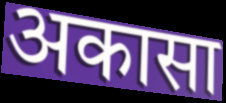
अकासा